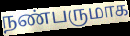
நண்பருமாக